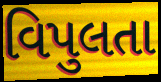
વિપુલતા